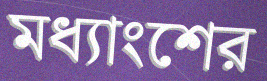
মধ্যাংশের